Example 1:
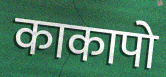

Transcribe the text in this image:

काकापो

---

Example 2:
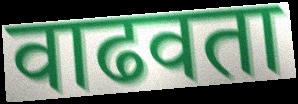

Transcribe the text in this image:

वाढवता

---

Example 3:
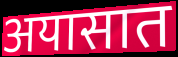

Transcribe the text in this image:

अयासात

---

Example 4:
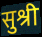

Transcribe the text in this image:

सुश्री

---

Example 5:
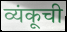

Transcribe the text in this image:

व्यंकूची